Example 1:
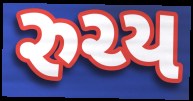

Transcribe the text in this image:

રુચ્ય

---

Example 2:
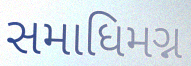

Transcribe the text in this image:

સમાધિમગ્ન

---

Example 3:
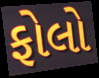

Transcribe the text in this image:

ફોલો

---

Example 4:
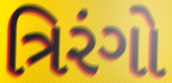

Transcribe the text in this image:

ત્રિરંગો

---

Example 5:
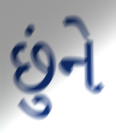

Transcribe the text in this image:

છુંને